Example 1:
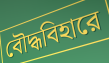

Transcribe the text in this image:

বৌদ্ধবিহারে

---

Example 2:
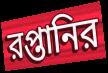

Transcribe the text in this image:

রপ্তানির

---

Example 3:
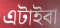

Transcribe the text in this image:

এটাইবা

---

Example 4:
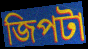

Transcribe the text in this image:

জিপটা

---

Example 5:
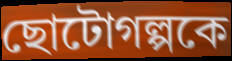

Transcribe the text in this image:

ছোটোগল্পকে